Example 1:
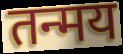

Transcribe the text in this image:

तन्‍मय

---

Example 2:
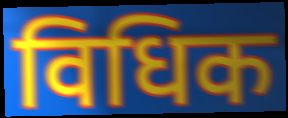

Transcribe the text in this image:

विधिक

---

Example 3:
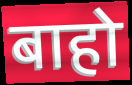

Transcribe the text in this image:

बाहो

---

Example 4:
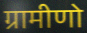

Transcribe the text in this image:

ग्रामीणो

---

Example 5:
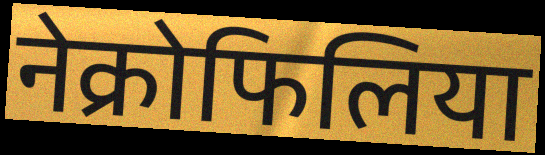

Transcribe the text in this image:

नेक्रोफिलिया